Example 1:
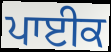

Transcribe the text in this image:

ਪਾਈਕ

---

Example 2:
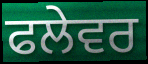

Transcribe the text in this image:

ਫਲੇਵਰ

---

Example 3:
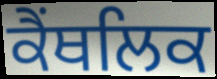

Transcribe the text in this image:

ਕੈਂਥਲਿਕ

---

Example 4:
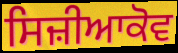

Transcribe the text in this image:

ਸਿਜ਼ੀਆਕੋਵ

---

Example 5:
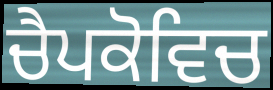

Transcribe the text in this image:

ਚੈਪਕੋਵਿਚ